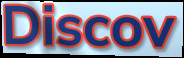
Discov